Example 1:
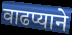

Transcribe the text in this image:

वाढप्याने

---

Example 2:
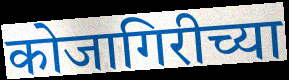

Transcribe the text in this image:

कोजागिरीच्या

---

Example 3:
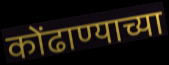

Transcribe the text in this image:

कोंढाण्याच्या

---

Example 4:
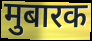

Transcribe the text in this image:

मुबारक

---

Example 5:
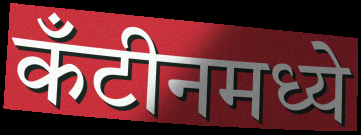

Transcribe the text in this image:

कँटीनमध्ये